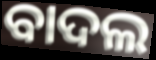
ବାଦଲ